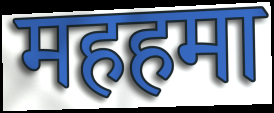
महहमा